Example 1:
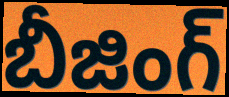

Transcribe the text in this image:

బీజింగ్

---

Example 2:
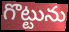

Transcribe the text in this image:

గొట్టును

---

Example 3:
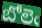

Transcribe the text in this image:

బోలెఁ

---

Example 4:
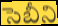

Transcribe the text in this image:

సెబీని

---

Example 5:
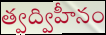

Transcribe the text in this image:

త్వద్విహీనం